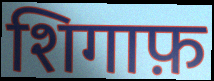
शिगाफ़